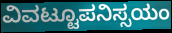
ವಿವಟ್ಟೂಪನಿಸ್ಸಯಂ